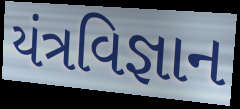
યંત્રવિજ્ઞાન